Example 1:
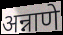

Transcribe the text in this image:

अन्नाणे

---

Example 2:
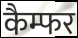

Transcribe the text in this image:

कैम्फर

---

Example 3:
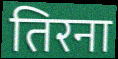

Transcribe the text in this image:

तिरना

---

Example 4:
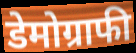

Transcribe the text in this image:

डेमोग्राफी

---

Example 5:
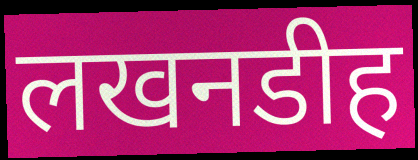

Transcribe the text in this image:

लखनडीह